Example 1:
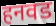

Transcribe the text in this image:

हनवड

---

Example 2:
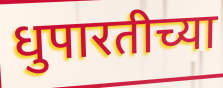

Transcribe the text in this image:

धुपारतीच्या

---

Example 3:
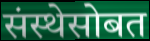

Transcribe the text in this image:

संस्थेसोबत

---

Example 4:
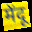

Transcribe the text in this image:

मेंदू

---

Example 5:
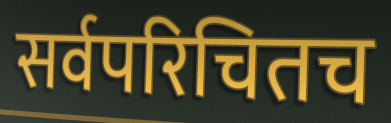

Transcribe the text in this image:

सर्वपरिचितच